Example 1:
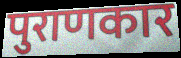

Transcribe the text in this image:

पुराणकार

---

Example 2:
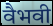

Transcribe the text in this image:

वैभवी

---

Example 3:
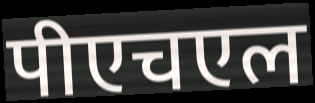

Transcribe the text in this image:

पीएचएल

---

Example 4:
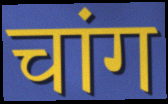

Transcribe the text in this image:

चांग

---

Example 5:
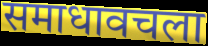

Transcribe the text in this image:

समाधावचला